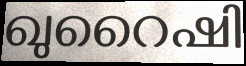
ഖുറൈഷി